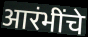
आरंभींचे